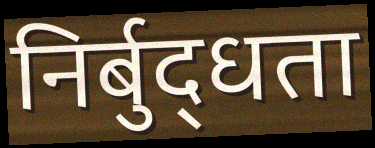
निर्बुद्धता